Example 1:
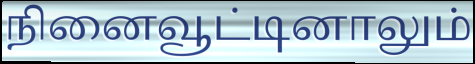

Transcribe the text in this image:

நினைவூட்டினாலும்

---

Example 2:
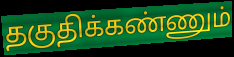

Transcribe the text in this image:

தகுதிக்கண்ணும்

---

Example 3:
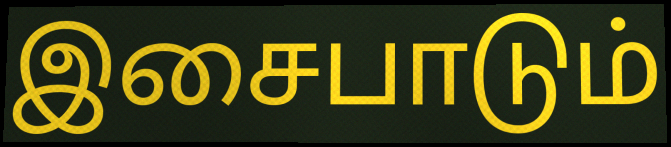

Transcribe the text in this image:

இசைபாடும்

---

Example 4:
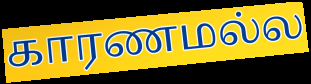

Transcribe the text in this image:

காரணமல்ல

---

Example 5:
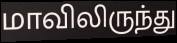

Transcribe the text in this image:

மாவிலிருந்து